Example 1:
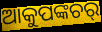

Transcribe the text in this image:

ଆକୁପଙ୍କଚର୍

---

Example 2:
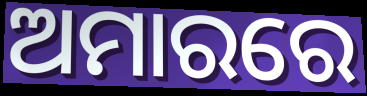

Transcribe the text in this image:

ଅମାରରେ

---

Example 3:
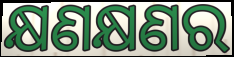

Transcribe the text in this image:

କ୍ଷଣକ୍ଷଣର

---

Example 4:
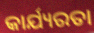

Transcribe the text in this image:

କାର୍ଯ୍ୟରତା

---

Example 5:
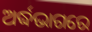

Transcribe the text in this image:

ଅର୍ଦ୍ଧଭାଗରେ